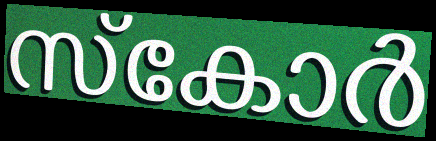
സ്‌കോർ